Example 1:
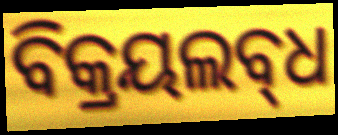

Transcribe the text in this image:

ବିକ୍ରୟଲବ୍‌ଧ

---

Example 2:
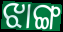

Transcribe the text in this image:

ଝାଙ୍ଗ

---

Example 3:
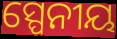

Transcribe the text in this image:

ସ୍ପେନୀୟ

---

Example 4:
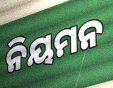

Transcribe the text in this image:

ନିୟମନ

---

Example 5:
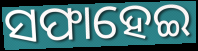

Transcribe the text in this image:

ସଫାହେଇ